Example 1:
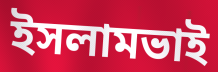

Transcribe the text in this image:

ইসলামভাই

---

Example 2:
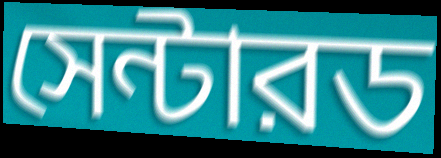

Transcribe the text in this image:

সেন্টারড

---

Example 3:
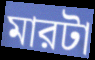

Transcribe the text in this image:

মারটা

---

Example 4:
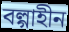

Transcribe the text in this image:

বল্গাহীন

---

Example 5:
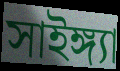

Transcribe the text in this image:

সাইঙ্গ্যা